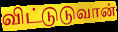
விட்டுடுவான்